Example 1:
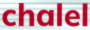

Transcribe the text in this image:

chalel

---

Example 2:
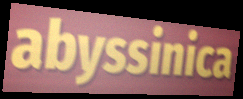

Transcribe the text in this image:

abyssinica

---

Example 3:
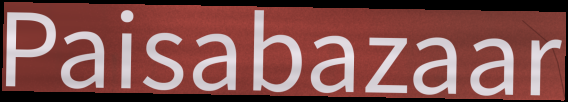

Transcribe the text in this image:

Paisabazaar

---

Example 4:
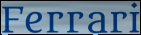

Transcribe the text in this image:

Ferrari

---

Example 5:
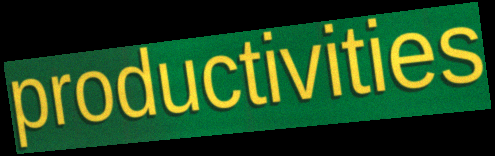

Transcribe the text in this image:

productivities